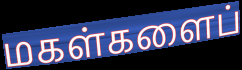
மகள்களைப்